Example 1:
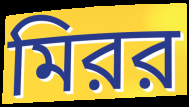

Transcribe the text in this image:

মিরর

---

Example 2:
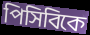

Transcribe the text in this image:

পিসিবিকে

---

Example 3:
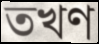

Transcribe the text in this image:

তখণ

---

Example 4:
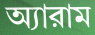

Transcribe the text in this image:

অ্যারাম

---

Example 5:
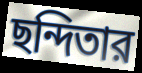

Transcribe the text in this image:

ছন্দিতার